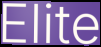
Elite